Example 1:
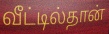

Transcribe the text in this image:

வீட்டில்தான்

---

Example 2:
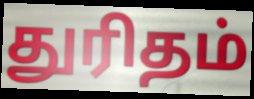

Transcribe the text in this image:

துரிதம்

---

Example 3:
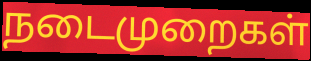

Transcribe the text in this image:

நடைமுறைகள்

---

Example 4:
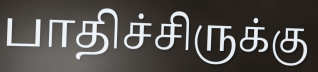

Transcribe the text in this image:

பாதிச்சிருக்கு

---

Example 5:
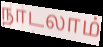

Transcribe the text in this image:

நாடலாம்